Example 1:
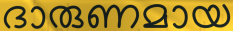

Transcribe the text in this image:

ദാരുണമായ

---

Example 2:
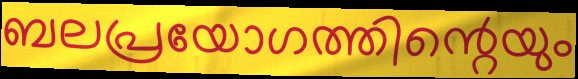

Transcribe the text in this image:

ബലപ്രയോഗത്തിന്റെയും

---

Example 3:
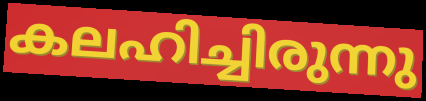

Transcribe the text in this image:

കലഹിച്ചിരുന്നു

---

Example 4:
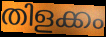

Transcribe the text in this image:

തിളക്കം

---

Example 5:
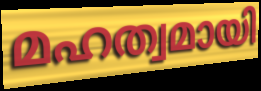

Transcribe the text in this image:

മഹത്വമായി